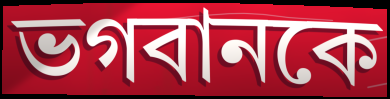
ভগবানকে